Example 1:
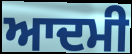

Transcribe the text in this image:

ਆਦਮੀ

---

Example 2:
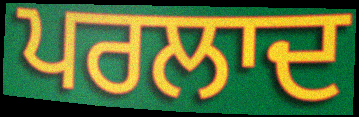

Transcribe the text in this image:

ਪਰਲਾਦ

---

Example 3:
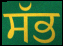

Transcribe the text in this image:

ਸੱਭ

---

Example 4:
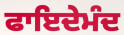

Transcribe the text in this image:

ਫਾਇਦੇਮੰਦ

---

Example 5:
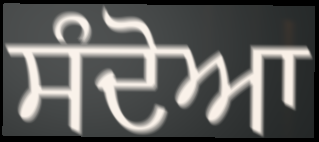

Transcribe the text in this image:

ਸੰਦੋਆ